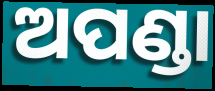
ଅପଣ୍ଡା